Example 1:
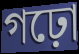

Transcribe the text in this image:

গঢ়ো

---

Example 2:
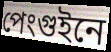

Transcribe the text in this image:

পেংগুইনে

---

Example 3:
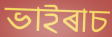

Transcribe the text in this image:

ভাইৰাচ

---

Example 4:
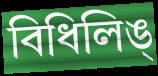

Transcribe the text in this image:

বিধিলিঙ্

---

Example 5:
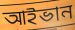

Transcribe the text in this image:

আইভান